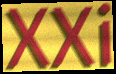
XXi